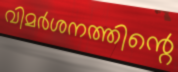
വിമർശനത്തിന്റെ